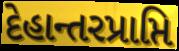
દેહાન્તરપ્રાપ્તિ